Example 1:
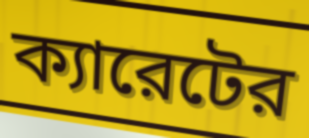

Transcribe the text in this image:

ক্যারেটের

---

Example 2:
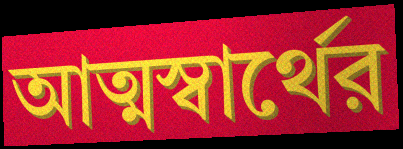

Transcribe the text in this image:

আত্মস্বার্থের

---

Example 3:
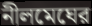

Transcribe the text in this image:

নীলমেঘের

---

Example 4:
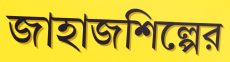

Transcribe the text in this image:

জাহাজশিল্পের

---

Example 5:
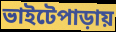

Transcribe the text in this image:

ভাইটেপাড়ায়